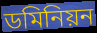
ডমিনিয়ন